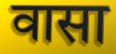
वासा